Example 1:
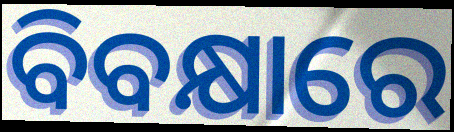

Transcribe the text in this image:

ବିବକ୍ଷାରେ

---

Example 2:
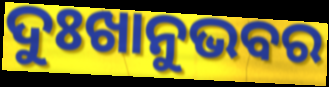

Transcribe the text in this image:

ଦୁଃଖାନୁଭବର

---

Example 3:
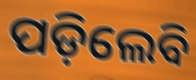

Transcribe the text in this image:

ପଡ଼ିଲେବି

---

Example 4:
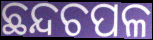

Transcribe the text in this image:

ଛନ୍ଦଚପଳ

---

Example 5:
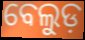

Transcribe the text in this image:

ବେଲୁଡ଼